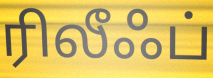
ரிலீஃப்